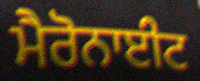
ਮੈਰੋਨਾਈਟ